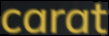
carat